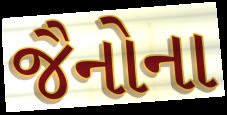
જૈનોના